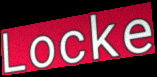
Locke